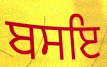
ਬਸਇ